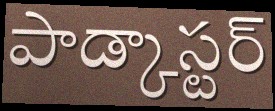
పాడ్కాస్టర్